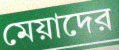
মেয়াদের